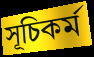
সূচিকৰ্ম